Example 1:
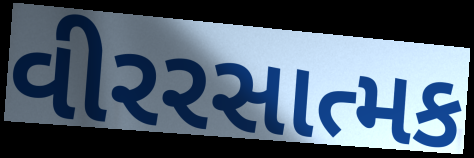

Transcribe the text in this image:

વીરરસાત્મક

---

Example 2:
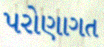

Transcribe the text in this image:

પરોણાગત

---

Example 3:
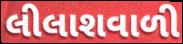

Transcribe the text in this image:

લીલાશવાળી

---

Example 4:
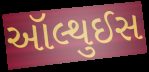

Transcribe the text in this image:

ઑલ્થુઈસ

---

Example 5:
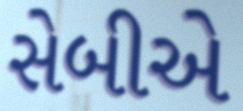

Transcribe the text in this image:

સેબીએ